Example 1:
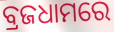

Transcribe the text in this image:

ବ୍ରଜଧାମରେ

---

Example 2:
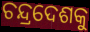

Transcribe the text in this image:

ଚନ୍ଦ୍ରଦେଶକୁ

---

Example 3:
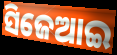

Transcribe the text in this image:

ସିଜେଆଇ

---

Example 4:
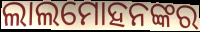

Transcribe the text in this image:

ଲାଲମୋହନଙ୍କର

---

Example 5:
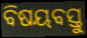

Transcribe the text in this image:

ବିଷୟବସ୍ତୁ